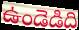
ఉండెడిది